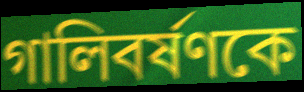
গালিবর্ষণকে